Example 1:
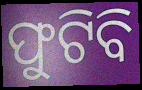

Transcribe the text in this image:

ଫୁଟିବି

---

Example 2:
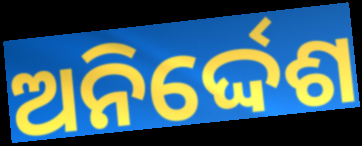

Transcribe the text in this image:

ଅନିର୍ଦ୍ଦେଶ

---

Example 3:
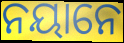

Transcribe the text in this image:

ନୟାନେ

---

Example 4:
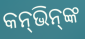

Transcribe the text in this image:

କନ୍‌ଭିନ୍‌ଙ୍କ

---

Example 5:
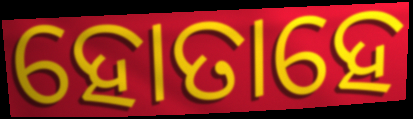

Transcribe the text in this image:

ହୋତାହେ